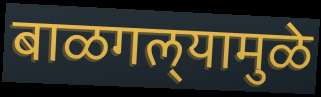
बाळगल्यामुळे